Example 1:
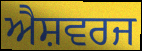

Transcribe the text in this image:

ਐਸ਼ਵਰਜ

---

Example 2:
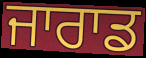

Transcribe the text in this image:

ਜਾਰਾਡ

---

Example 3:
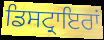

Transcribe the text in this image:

ਡਿਸਟ੍ਰਾਇਰਾਂ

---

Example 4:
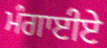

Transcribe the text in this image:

ਮੰਗਾਈਏ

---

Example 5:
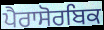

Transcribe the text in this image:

ਪੈਰਾਸੋਰਬਿਕ